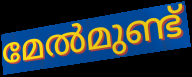
മേൽമുണ്ട്